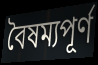
বৈষম্যপূর্ণ